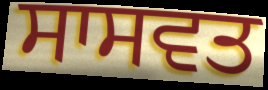
ਸਾਸਵਤ